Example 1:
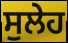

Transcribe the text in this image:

ਸੁਲੇਹ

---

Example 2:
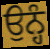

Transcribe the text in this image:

ਉਨ੍ਹੰ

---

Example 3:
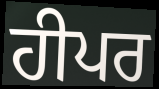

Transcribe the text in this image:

ਹੀਪਰ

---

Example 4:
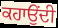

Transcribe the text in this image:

ਕਹਾਉਂਦੀ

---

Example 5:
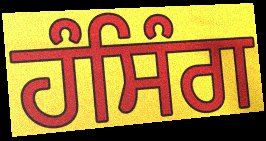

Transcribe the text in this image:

ਹੰਸਿੰਗ